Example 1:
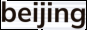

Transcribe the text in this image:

beijing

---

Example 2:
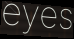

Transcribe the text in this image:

eyes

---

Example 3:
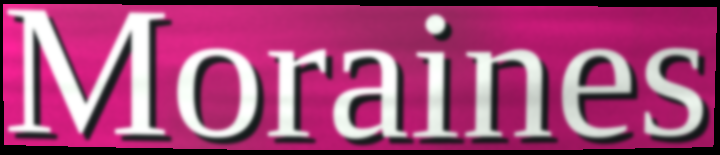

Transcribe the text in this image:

Moraines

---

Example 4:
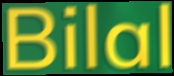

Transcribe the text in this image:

Bilal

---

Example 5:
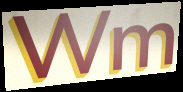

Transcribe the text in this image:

Wm